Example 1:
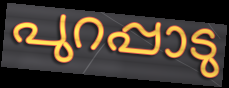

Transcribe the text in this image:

പുറപ്പാടു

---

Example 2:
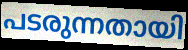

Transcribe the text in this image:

പടരുന്നതായി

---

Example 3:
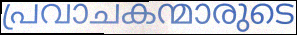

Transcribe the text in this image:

പ്രവാചകന്മാരുടെ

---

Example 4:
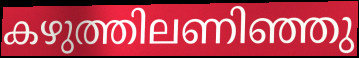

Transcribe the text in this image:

കഴുത്തിലണിഞ്ഞു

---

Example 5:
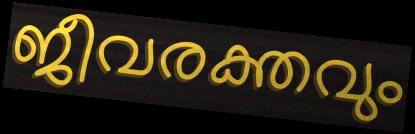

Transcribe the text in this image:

ജീവരക്തവും